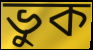
ভুক